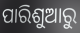
ପାରିଶୁଆରୁ